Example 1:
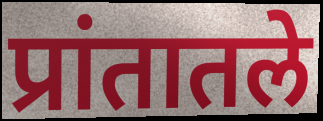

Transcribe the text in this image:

प्रांतातले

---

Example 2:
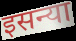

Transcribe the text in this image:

इसन्या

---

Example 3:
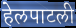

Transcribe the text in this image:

हेलपाटली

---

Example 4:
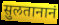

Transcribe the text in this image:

सुलतानानं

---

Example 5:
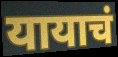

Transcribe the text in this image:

यायाचं